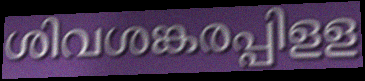
ശിവശങ്കരപ്പിളള